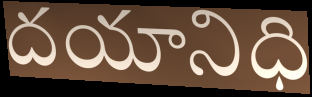
దయానిధి